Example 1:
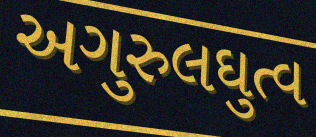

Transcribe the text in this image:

અગુરુલઘુત્વ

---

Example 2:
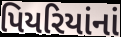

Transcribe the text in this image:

પિયરિયાંનાં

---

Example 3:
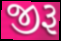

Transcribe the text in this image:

જીરૂ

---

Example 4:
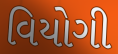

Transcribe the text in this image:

વિયોગી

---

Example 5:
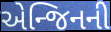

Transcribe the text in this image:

એન્જિનની